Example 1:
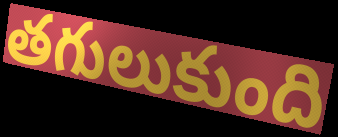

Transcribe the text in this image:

తగులుకుంది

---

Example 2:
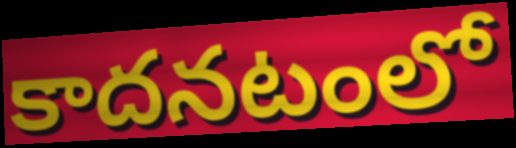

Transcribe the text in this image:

కాదనటంలో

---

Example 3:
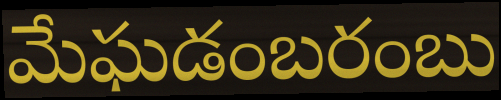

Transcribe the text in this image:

మేఘడంబరంబు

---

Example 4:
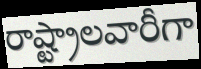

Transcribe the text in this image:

రాష్ట్రాలవారీగా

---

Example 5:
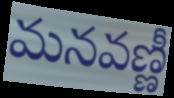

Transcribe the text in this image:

మనవణ్ణీ